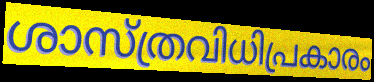
ശാസ്ത്രവിധിപ്രകാരം